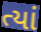
ત્યાં